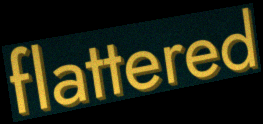
flattered